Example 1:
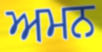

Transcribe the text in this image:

ਅਮਨ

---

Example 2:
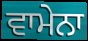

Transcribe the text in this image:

ਵਾਮੇਨਾ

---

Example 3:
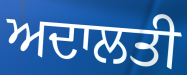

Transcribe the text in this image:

ਅਦਾਲਤੀ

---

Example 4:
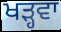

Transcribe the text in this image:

ਖੜ੍ਹਵਾ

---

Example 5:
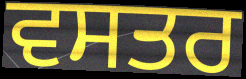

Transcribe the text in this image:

ਵਸਤਰ